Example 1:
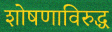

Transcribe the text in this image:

शोषणाविरुद्ध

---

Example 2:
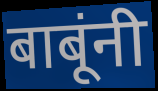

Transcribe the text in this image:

बाबूंनी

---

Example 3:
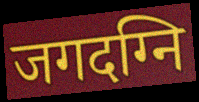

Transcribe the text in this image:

जगदग्नि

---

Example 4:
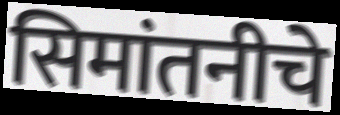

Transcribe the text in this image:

सिमांतनीचे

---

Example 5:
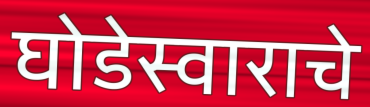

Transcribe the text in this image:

घोडेस्वाराचे